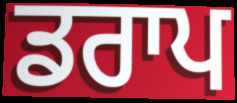
ਡਰਾਪ